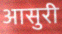
आसुरी